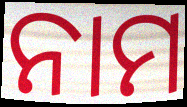
ନାମ